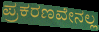
ಪ್ರಕರಣವೇನಲ್ಲ